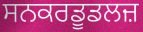
ਸਨਕਰਡੂਡਲਜ਼